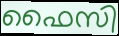
ഫൈസി